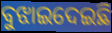
ବୁଝାଇଦେଇଛି